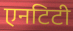
एनटिटी